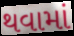
થવામાં